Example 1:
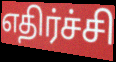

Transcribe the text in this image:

எதிர்ச்சி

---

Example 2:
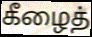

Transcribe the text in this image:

கீழைத்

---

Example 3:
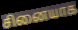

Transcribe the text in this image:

சினையாக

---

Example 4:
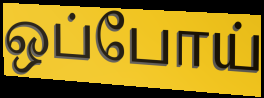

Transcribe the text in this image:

ஒப்போய்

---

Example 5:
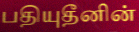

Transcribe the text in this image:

பதியுதீனின்